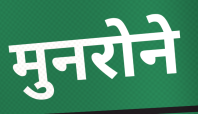
मुनरोने